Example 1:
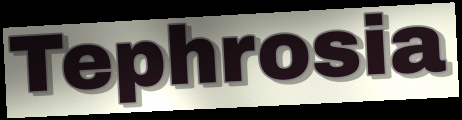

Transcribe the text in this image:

Tephrosia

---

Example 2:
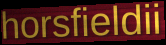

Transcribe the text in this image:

horsfieldii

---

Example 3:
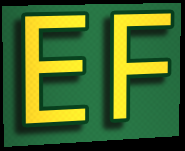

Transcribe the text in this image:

EF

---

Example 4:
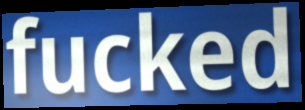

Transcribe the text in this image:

fucked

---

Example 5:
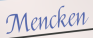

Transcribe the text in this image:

Mencken